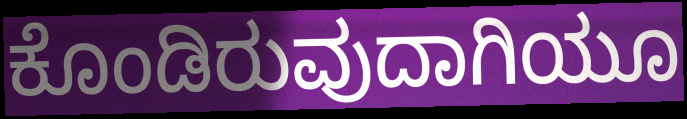
ಕೊಂಡಿರುವುದಾಗಿಯೂ